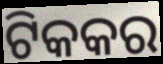
ଟିକକର